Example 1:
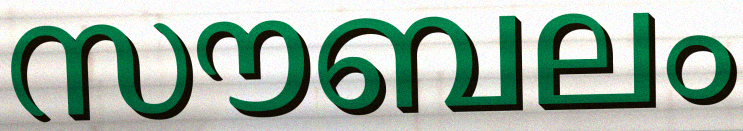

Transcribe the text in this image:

സൗബലം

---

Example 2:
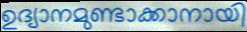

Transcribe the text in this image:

ഉദ്യാനമുണ്ടാക്കാനായി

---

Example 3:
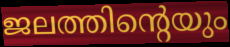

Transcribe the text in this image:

ജലത്തിന്റെയും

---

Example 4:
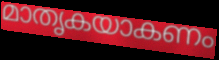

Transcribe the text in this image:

മാതൃകയാകണം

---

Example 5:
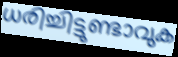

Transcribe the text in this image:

ധരിച്ചിട്ടുണ്ടാവുക